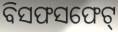
ବିସଫସଫେଟ୍